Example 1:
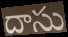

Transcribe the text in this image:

దాసు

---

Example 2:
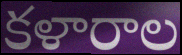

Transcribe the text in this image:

కళారాల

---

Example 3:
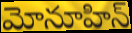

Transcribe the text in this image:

మోనూహిన్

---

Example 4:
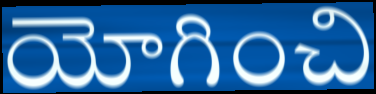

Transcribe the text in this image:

యోగించి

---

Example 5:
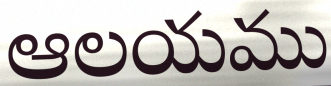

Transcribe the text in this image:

ఆలయము